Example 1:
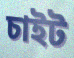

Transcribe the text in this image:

চাইট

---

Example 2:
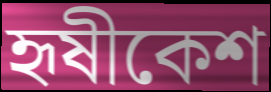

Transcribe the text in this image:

হৃষীকেশ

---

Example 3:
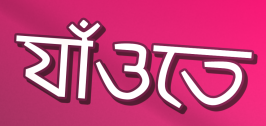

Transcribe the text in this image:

যাঁওতে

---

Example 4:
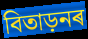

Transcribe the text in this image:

বিতাড়নৰ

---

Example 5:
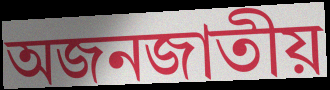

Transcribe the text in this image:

অজনজাতীয়